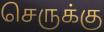
செருக்கு